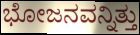
ಭೋಜನವನ್ನಿತ್ತು